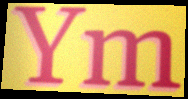
Ym